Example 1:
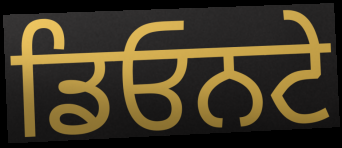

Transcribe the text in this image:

ਡਿਓਨਟੇ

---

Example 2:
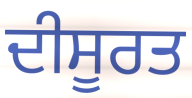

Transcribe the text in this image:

ਦੀਸੂਰਤ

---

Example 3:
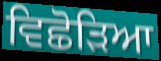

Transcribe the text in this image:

ਵਿਛੋੜਿਆ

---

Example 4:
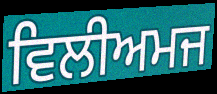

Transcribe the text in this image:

ਵਿਲੀਅਮਜ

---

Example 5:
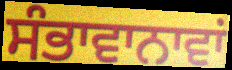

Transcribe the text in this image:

ਸੰਭਾਵਾਨਾਵਾਂ